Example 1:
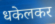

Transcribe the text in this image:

धकेलकर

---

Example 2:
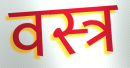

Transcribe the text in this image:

वस्‍त्र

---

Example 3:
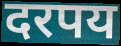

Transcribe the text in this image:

दरपय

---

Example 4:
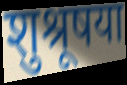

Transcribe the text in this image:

शुश्रूषया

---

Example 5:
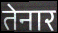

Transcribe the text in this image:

तेनार